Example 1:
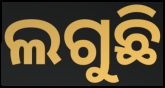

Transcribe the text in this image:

ଲଗୁଛି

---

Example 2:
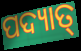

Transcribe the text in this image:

ପଦ୍ୟାତ୍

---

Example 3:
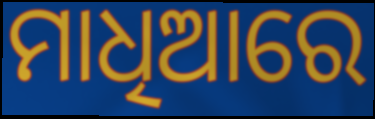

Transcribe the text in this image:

ମାଧିଆରେ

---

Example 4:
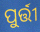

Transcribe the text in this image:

ପୁର୍ତ୍ତୀ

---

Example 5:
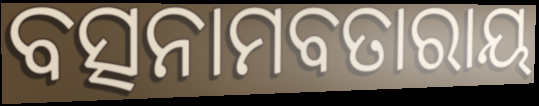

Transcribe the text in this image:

ବତ୍ସନାମବତାରାୟ